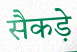
सैकड़े